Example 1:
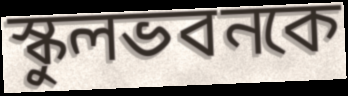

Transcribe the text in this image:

স্কুলভবনকে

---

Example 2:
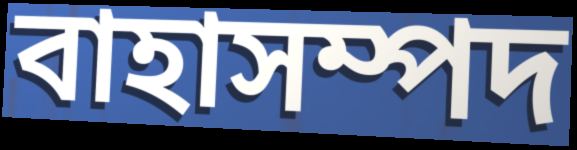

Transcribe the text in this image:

বাহাসম্পদ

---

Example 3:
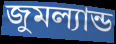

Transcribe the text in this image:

জুমল্যান্ড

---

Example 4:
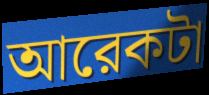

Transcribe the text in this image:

আরেকটা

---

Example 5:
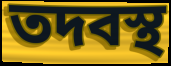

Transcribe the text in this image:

তদবস্থ